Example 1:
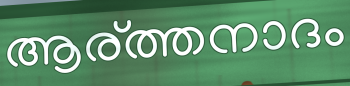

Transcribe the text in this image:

ആര്ത്തനാദം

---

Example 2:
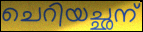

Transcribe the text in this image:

ചെറിയച്ഛന്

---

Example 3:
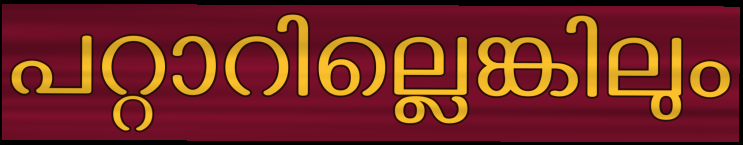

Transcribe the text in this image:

പറ്റാറില്ലെങ്കിലും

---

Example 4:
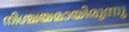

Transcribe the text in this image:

നിശ്ചയമായിരുന്നു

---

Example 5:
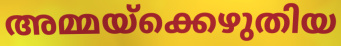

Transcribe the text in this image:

അമ്മയ്ക്കെഴുതിയ